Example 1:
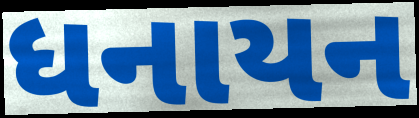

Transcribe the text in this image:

ધનાયન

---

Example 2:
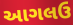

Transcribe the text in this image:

આગલઉ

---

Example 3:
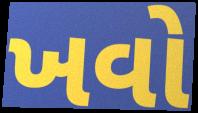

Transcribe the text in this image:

ખવો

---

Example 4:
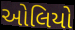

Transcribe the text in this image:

ઓલિયો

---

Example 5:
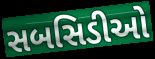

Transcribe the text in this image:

સબસિડીઓ